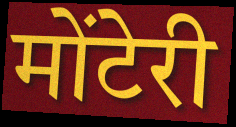
मोंटेरी